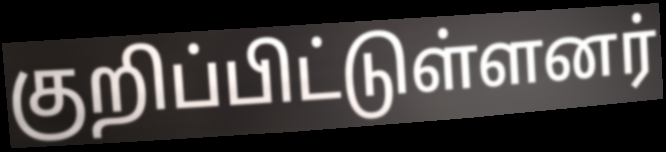
குறிப்பிட்டுள்ளனர்